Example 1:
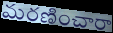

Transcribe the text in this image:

మరణించారా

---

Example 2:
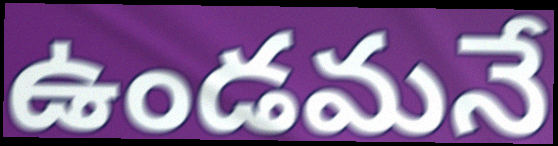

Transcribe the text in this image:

ఉండమనే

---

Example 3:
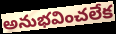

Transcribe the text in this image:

అనుభవించలేక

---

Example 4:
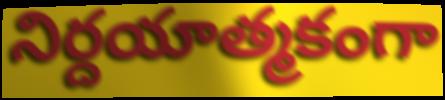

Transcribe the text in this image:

నిర్దయాత్మకంగా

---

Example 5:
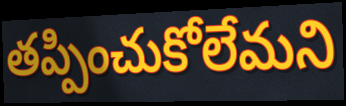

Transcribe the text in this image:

తప్పించుకోలేమని